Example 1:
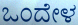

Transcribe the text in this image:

ಒಂದೇಳ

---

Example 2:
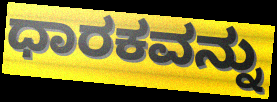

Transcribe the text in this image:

ಧಾರಕವನ್ನು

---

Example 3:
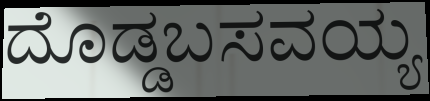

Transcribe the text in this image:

ದೊಡ್ಡಬಸವಯ್ಯ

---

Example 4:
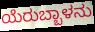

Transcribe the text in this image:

ಯೆರುಬ್ಬಾಳನು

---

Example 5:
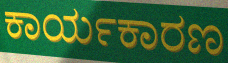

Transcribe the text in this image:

ಕಾರ್ಯಕಾರಣ